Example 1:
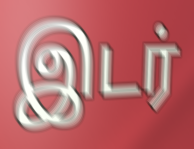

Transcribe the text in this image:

இடர்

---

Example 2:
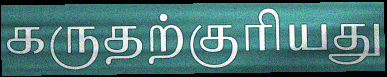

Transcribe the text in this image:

கருதற்குரியது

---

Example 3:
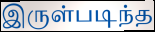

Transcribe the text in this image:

இருள்படிந்த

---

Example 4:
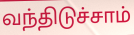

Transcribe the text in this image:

வந்திடுச்சாம்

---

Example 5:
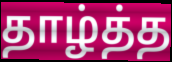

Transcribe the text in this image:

தாழ்த்த